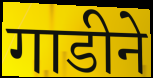
गाडीने